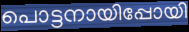
പൊട്ടനായിപ്പോയി